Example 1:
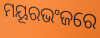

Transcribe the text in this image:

ମୟୂରଭଂଜରେ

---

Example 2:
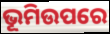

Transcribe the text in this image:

ଭୂମିଉପରେ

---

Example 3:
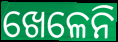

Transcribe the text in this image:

ଖେଳେନି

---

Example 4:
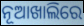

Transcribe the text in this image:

ନୂଆଖାଲିରେ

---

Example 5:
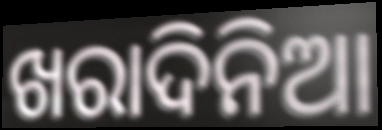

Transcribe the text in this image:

ଖରାଦିନିଆ